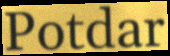
Potdar